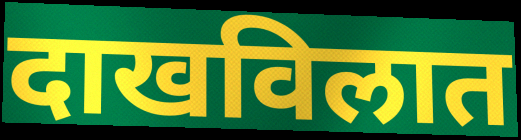
दाखविलात